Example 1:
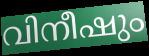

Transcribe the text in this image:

വിനീഷും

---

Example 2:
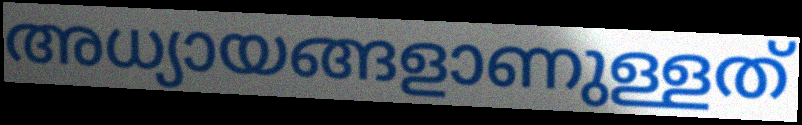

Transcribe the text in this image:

അധ്യായങ്ങളാണുള്ളത്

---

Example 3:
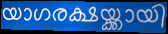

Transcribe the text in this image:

യാഗരക്ഷയ്ക്കായി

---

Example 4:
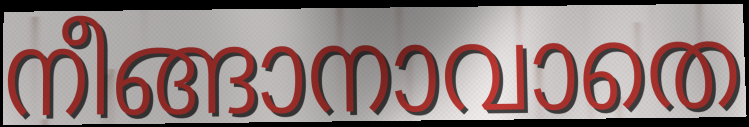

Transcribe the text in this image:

നീങ്ങാനാവാതെ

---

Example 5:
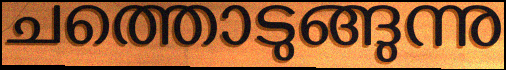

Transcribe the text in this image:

ചത്തൊടുങ്ങുന്നു